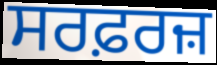
ਸਰਫ਼ਰਜ਼